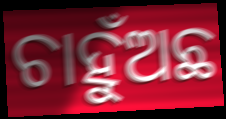
ଚାହୁଁଅଛ